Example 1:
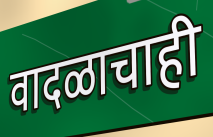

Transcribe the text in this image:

वादळाचाही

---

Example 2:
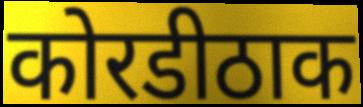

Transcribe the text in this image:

कोरडीठाक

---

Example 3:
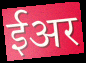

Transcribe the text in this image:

ईअर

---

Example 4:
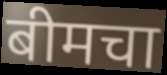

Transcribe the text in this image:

बीमचा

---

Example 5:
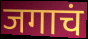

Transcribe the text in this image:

जगाचं